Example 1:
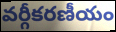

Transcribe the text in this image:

వర్గీకరణీయం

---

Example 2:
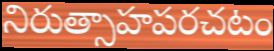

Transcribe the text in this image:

నిరుత్సాహపరచటం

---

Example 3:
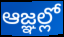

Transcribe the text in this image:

ఆజ్ఞల్లో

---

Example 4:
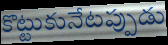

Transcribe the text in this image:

కొట్టుకునేటప్పుడు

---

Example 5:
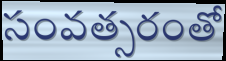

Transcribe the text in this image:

సంవత్సరంతో